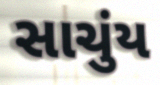
સાચુંય